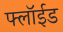
फ्लॉईड